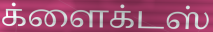
க்ளைக்டஸ்